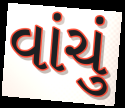
વાંચું